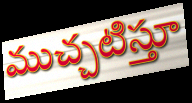
ముచ్చటిస్తూ